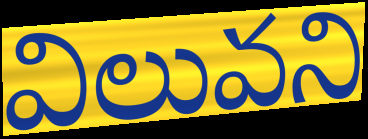
విలువని